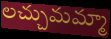
లచ్చుమమ్మా